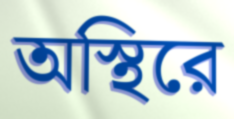
অস্থিরে